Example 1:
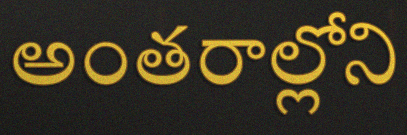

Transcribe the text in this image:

అంతరాల్లోని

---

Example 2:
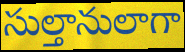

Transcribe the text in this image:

సుల్తానులాగా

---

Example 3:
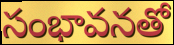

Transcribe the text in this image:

సంభావనతో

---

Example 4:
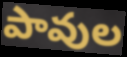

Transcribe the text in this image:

పావుల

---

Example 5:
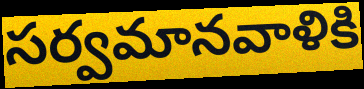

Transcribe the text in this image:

సర్వమానవాళికి